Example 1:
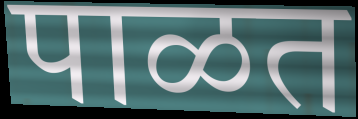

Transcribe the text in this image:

पाळत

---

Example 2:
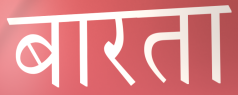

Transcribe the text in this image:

बारता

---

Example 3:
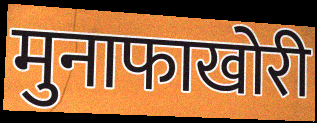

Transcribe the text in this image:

मुनाफाखोरी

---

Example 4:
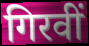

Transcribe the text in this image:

गिरवीं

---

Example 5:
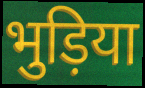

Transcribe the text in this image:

भुड़िया